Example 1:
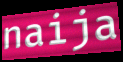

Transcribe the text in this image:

naija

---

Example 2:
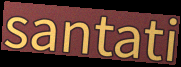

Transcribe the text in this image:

santati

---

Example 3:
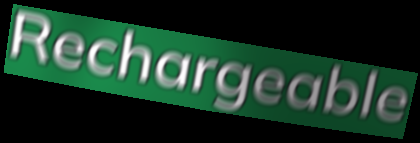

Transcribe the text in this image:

Rechargeable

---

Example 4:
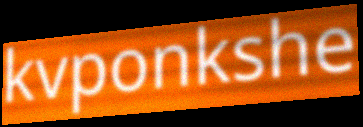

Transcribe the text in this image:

kvponkshe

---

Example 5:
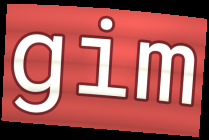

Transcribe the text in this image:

gim